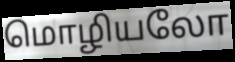
மொழியலோ